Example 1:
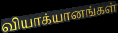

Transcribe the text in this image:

வியாக்யானங்கள்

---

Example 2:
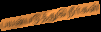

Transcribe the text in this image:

பயன்படுத்துகிறீர்கள்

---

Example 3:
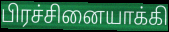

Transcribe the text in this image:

பிரச்சினையாக்கி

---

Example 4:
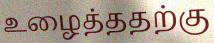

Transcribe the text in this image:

உழைத்ததற்கு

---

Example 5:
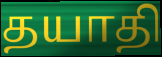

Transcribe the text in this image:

தயாதி